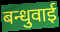
बन्धुवाई